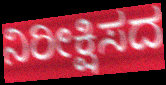
ನಿರೀಕ್ಷಿಸದ